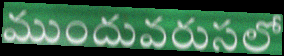
ముందువరుసలో